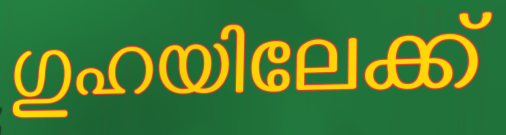
ഗുഹയിലേക്ക്